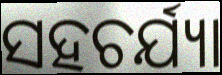
ସହଚର୍ଯ୍ୟା